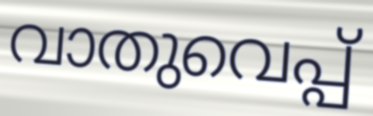
വാതുവെപ്പ്